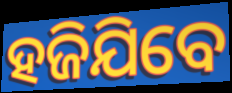
ହଜିଯିବେ